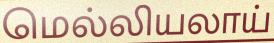
மெல்லியலாய்